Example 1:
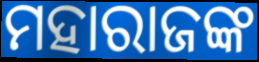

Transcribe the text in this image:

ମହାରାଜଙ୍କ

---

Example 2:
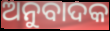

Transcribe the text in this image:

ଅନୁବାଦକ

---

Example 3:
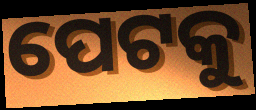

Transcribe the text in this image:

ପେଟକୁ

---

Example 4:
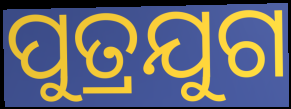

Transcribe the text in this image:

ପୁତ୍ରଯୁଗ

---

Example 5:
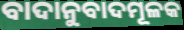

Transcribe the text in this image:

ବାଦାନୁବାଦମୂଳକ